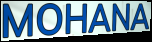
MOHANA